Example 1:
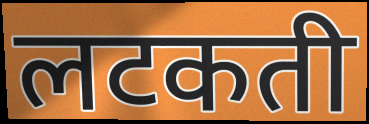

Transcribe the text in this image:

लटकती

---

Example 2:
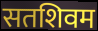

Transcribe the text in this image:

सतशिवम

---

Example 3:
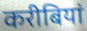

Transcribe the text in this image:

करीबियां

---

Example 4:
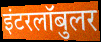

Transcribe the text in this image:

इंटरलॉबुलर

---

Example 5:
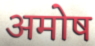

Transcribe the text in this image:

अमोष